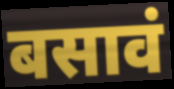
बसावं